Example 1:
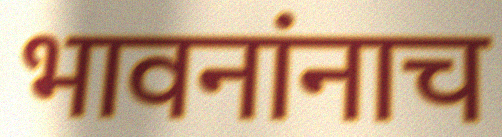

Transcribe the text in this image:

भावनांनाच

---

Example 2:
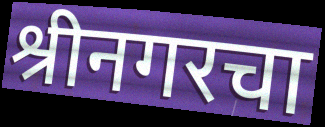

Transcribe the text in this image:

श्रीनगरचा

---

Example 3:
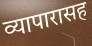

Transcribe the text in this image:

व्यापारासह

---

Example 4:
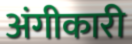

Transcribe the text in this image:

अंगीकारी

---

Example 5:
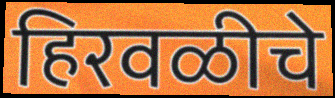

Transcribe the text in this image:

हिरवळीचे